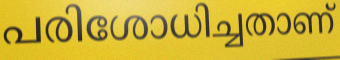
പരിശോധിച്ചതാണ്